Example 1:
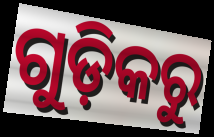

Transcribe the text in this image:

ଗୁଡ଼ିକରୁ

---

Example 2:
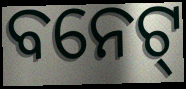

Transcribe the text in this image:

ବନେଟ୍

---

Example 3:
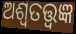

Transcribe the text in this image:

ଅଶ୍ୱତତ୍ତ୍ୱଜ୍ଞ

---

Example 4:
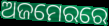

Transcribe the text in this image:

ଅଜମେରରେ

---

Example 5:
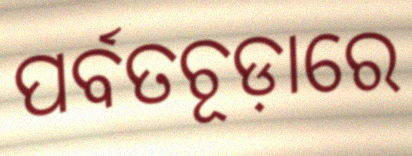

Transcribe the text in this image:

ପର୍ବତଚୂଡ଼ାରେ